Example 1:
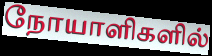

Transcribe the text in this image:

நோயாளிகளில்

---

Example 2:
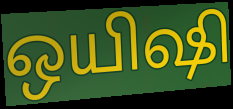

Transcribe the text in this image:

ஒயிஷி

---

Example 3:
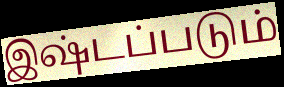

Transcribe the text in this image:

இஷ்டப்படும்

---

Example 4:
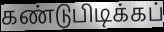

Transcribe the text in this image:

கண்டுபிடிக்கப்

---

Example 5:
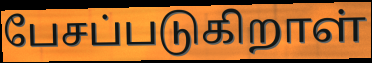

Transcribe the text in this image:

பேசப்படுகிறாள்